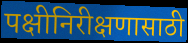
पक्षीनिरीक्षणासाठी